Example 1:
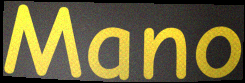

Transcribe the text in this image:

Mano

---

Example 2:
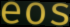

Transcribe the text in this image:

eos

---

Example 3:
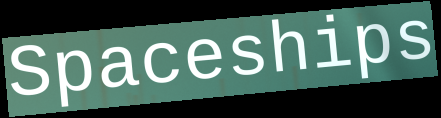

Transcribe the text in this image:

Spaceships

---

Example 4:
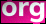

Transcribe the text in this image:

org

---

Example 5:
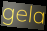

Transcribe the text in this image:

gela